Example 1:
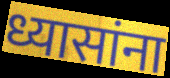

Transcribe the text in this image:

ध्यासांना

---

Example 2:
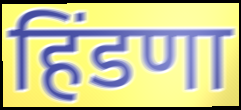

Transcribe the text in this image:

हिंडणा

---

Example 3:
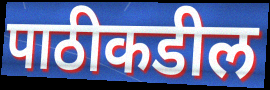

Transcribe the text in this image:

पाठीकडील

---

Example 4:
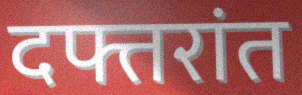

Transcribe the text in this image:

दफ्तरांत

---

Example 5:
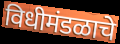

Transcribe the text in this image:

विधीमंडळाचे